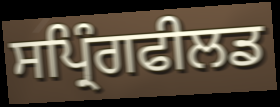
ਸਪ੍ਰਿੰਗਫੀਲਡ